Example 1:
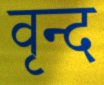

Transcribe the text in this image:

वृन्द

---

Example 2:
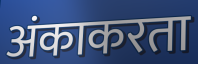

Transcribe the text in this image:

अंकाकरता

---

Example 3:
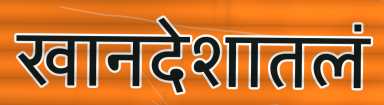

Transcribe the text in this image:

खानदेशातलं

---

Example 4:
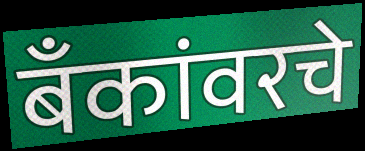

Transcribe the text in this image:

बँकांवरचे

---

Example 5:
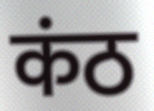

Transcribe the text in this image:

कंठ